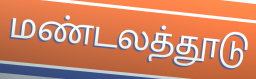
மண்டலத்தூடு